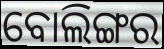
ବୋଲିଙ୍ଗର